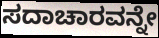
ಸದಾಚಾರವನ್ನೇ